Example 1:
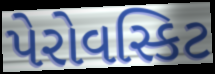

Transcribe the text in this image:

પેરોવસ્કિટ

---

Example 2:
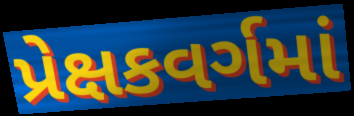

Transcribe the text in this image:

પ્રેક્ષકવર્ગમાં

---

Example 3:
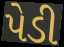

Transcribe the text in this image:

પેડી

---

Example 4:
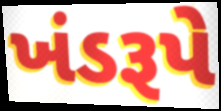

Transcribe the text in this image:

ખંડરૂપે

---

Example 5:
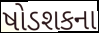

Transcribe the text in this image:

ષોડશકના